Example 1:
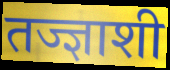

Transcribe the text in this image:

तज्ज्ञाशी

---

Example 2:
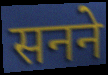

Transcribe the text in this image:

सनने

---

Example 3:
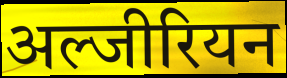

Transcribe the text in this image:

अल्जीरियन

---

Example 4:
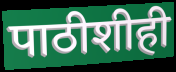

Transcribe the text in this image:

पाठीशीही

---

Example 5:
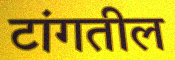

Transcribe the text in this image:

टांगतील